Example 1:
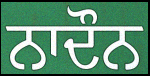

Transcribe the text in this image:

ਨਾਦੌਨ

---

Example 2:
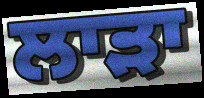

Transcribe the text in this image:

ਲਾੜਾ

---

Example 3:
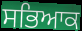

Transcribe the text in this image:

ਸਭਿਆਕ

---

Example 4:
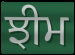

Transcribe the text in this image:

ਝੀਮ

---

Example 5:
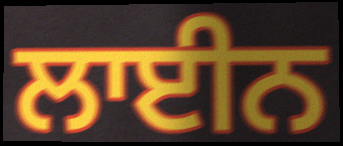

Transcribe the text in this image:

ਲਾਈਨ